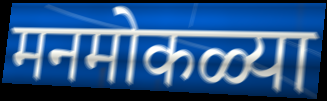
मनमोकळ्या